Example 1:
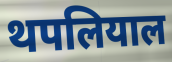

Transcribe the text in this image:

थपलियाल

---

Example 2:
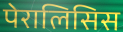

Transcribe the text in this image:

पेरालिसिस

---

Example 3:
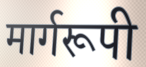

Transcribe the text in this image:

मार्गरूपी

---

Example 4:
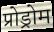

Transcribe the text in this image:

प्रोड्रोम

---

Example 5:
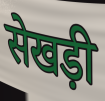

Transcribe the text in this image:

सेखड़ी